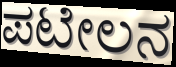
ಪಟೇಲನ